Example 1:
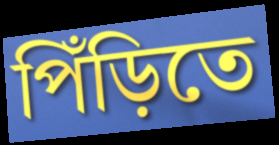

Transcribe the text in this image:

পিঁড়িতে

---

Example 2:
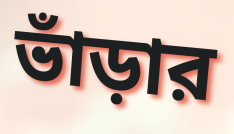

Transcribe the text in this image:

ভাঁড়ার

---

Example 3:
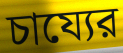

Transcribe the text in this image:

চায্যের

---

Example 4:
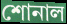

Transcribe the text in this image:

শোনাল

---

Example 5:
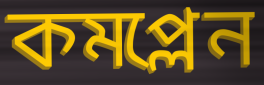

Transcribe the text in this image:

কমপ্লেন